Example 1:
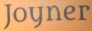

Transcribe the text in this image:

Joyner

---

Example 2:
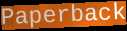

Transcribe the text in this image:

Paperback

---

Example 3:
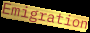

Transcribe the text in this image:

Emigration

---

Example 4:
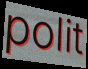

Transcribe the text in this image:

polit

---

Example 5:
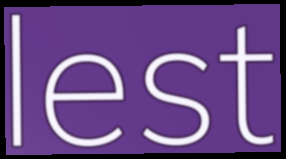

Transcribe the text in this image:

lest